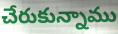
చేరుకున్నాము